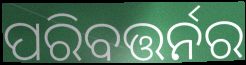
ପରିବତ୍ତର୍ନର